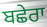
ਬਛੇਰਾ